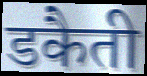
डकैती